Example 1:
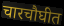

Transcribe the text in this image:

चारचौघीत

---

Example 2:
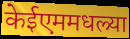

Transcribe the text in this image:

केईएममधल्या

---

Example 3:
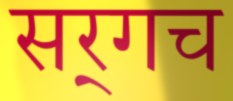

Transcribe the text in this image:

सर्गच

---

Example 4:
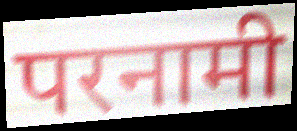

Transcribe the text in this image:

परनामी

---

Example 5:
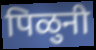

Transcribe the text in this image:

पिळुनी